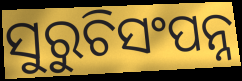
ସୁରୁଚିସଂପନ୍ନ